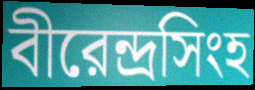
বীরেন্দ্রসিংহ